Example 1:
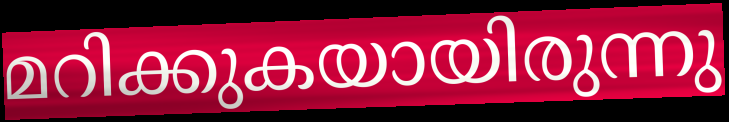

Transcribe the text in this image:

മറിക്കുകയായിരുന്നു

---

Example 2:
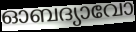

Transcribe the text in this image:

ഓബദ്യാവോ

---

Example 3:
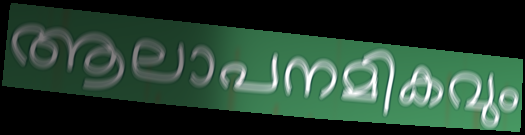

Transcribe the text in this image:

ആലാപനമികവും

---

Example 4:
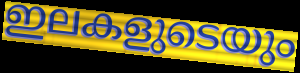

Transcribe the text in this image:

ഇലകളുടെയും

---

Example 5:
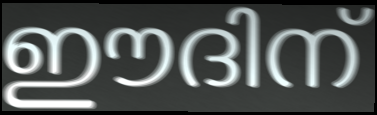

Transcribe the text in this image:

ഈദിന്